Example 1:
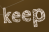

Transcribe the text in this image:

keep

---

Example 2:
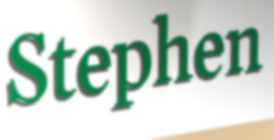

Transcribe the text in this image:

Stephen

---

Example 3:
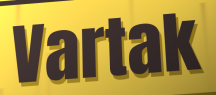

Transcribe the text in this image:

Vartak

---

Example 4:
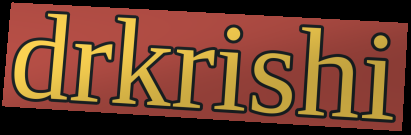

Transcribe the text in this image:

drkrishi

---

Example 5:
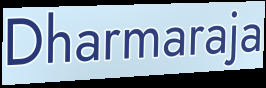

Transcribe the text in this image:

Dharmaraja